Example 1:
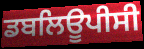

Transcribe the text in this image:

ਡਬਲਿਊਪੀਸੀ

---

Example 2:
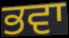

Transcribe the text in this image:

ਭਵਾ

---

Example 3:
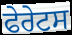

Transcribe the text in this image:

ਫੇਰੇਟਸ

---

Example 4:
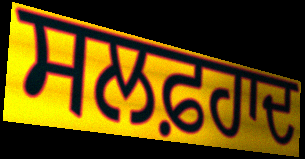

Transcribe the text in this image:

ਸਲਫ਼ਹਾਦ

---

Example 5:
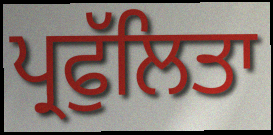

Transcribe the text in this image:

ਪ੍ਰਫੁੱਲਿਤਾ